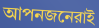
আপনজনেরাই